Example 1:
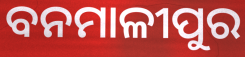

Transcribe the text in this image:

ବନମାଳୀପୁର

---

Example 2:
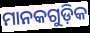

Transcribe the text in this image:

ମାନକଗୁଡ଼ିକ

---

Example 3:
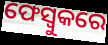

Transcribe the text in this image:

ଫେସ୍ବୁକରେ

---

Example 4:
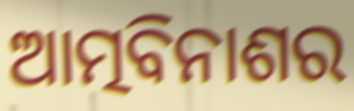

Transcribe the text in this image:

ଆତ୍ମବିନାଶର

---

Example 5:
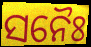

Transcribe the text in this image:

ସନୈଃ